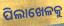
ପିଲାଖେଳକୁ